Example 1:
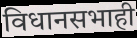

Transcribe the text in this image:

विधानसभाही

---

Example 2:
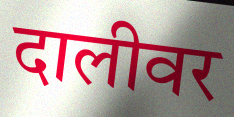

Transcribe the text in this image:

दालीवर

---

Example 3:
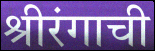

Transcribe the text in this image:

श्रीरंगाची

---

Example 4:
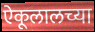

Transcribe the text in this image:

ऐकूलालच्या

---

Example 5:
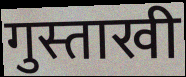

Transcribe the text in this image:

गुस्ताखी